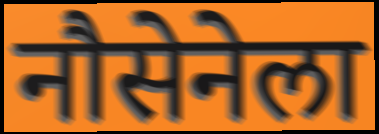
नौसेनेला